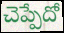
చెప్పేదో